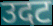
उदट